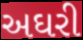
અઘરી